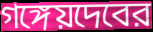
গঙ্গেয়দেবের